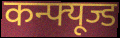
कन्फ्यूज्ड